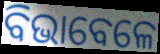
ବିଭାବେଳେ